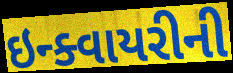
ઇન્ક્વાયરીની